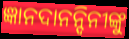
ଜ୍ଞାନଦାନନ୍ଦିନୀଙ୍କୁ